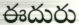
ఈదురు